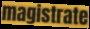
magistrate